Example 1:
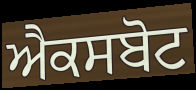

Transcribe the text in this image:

ਐਕਸਬੋਟ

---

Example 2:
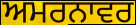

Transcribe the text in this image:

ਅਮਰਨਾਵਰ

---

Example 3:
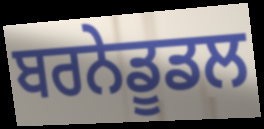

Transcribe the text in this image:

ਬਰਨੇਡੂਡਲ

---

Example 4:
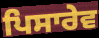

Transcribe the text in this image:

ਪਿਸਾਰੇਵ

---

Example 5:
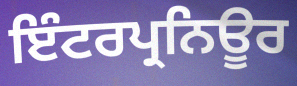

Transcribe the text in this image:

ਇੰਟਰਪ੍ਰਨਿਊਰ